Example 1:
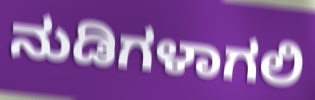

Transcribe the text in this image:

ನುಡಿಗಳಾಗಲಿ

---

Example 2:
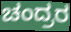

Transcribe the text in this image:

ಚಂದ್ರರ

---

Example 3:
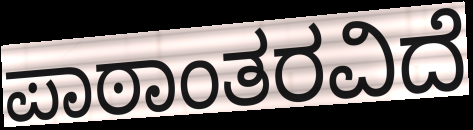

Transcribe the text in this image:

ಪಾಠಾಂತರವಿದೆ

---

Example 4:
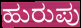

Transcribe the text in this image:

ಹುರುಪು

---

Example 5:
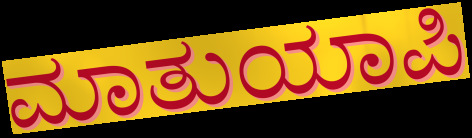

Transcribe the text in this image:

ಮಾತುಯಾಪಿ